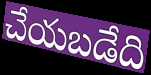
చేయబడేది